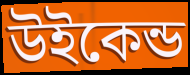
উইকেন্ড